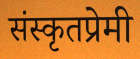
संस्कृतप्रेमी